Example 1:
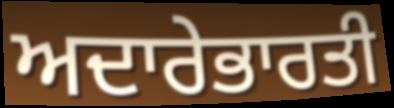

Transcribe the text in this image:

ਅਦਾਰੇਭਾਰਤੀ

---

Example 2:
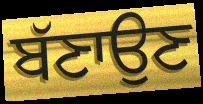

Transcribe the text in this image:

ਬੱਣਾਉਣ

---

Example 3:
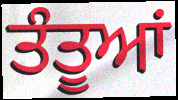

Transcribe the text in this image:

ਤੰਤੂਆਂ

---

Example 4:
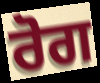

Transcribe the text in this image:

ਰੋਗ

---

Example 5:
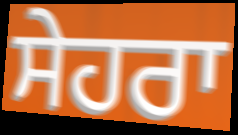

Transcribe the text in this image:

ਸੇਹਰਾ